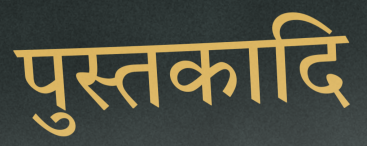
पुस्तकादि